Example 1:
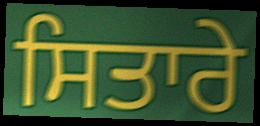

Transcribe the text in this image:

ਸਿਤਾਰੇ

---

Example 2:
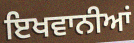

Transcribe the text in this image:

ਇਖਵਾਨੀਆਂ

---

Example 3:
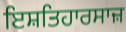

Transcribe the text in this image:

ਇਸ਼ਤਿਹਾਰਸਾਜ਼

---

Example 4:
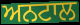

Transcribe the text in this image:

ਅਨਟਾਲ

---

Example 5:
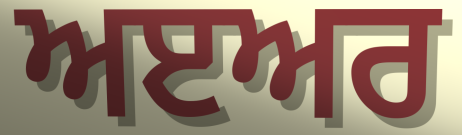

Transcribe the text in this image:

ਅੲਅਰ